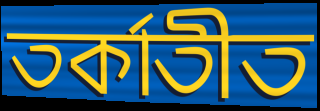
তৰ্কাতীত